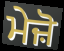
ਮੇਜ਼ੋ